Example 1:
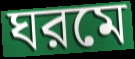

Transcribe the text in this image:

ঘরমে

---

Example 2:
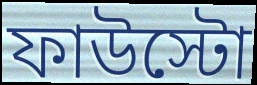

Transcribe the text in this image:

ফাউস্টো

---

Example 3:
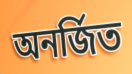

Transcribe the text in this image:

অনর্জিত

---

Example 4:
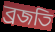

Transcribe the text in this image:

ব্রজতি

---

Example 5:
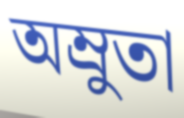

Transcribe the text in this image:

অম্রুতা